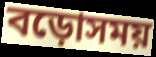
বড়োসময়